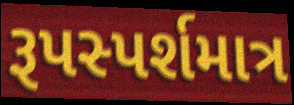
રૂપસ્પર્શમાત્ર